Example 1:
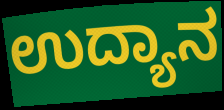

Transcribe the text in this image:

ಉದ್ಯಾನ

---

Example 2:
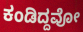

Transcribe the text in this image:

ಕಂಡಿದ್ದವೋ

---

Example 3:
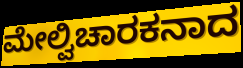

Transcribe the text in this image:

ಮೇಲ್ವಿಚಾರಕನಾದ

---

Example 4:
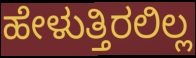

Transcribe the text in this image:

ಹೇಳುತ್ತಿರಲಿಲ್ಲ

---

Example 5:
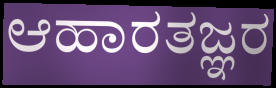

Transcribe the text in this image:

ಆಹಾರತಜ್ಞರ